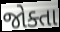
જોક્તા